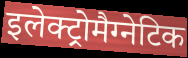
इलेक्ट्रोमैग्नेटिक